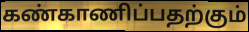
கண்காணிப்பதற்கும்